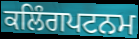
ਕਲਿੰਗਪਟਨਮ